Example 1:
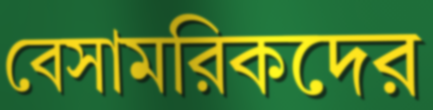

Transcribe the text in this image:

বেসামরিকদের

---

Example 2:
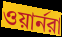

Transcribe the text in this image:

ওয়ার্নরা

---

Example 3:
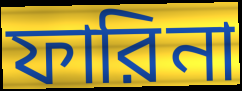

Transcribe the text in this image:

ফারিনা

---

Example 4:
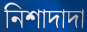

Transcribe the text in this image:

নিশাদাদা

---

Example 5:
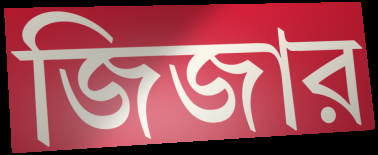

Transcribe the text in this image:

জিজার